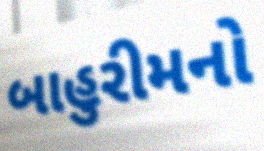
બાહુરીમનો